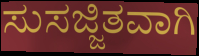
ಸುಸಜ್ಜಿತವಾಗಿ